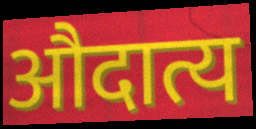
औदात्य